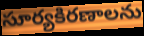
సూర్యకిరణాలను